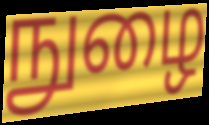
நுழை